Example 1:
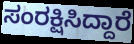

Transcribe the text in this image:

ಸಂರಕ್ಷಿಸಿದ್ದಾರೆ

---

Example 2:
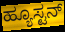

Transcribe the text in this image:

ಹ್ಯೂಸ್ಟನ್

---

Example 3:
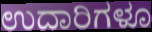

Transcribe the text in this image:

ಉದಾರಿಗಳೂ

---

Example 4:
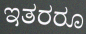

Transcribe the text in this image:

ಇತರರೂ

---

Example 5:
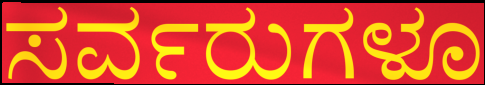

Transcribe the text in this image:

ಸರ್ವರುಗಳೂ